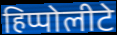
हिप्पोलीटे